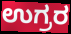
ಉಗ್ರರ